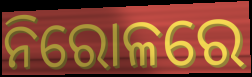
ନିରୋଳରେ